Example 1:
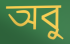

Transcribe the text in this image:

অবু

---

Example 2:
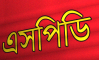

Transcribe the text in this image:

এসপিডি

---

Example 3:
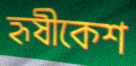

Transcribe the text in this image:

হৃষীকেশ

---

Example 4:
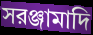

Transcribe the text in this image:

সরঞ্জামাদি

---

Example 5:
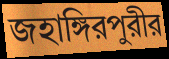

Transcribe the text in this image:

জহাঙ্গিরপুরীর